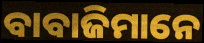
ବାବାଜିମାନେ